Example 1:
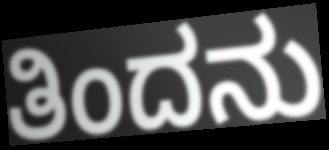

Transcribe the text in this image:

ತಿಂದನು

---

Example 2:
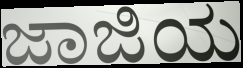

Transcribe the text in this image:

ಜಾಜಿಯ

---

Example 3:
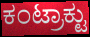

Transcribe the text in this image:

ಕಂಟ್ರಾಕ್ಟು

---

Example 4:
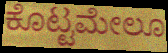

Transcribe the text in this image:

ಕೊಟ್ಟಮೇಲೂ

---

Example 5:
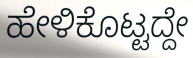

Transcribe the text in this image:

ಹೇಳಿಕೊಟ್ಟದ್ದೇ